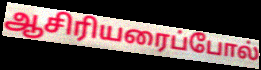
ஆசிரியரைப்போல்